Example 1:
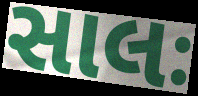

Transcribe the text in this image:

સાલઃ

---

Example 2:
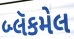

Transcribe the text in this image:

બ્લૅકમેલ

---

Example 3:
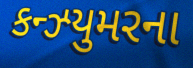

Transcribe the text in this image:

કન્ઝ્યુમરના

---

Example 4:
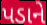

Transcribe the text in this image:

પડાને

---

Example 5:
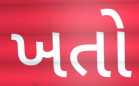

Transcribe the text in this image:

ખતો